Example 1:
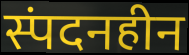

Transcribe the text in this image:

स्पंदनहीन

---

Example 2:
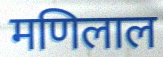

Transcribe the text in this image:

मणिलाल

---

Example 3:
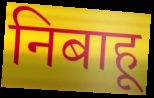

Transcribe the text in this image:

निबाहू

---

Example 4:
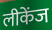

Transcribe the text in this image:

लीकेंज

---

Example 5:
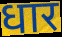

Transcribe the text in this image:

धार